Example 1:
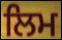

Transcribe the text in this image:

ਲਿਮ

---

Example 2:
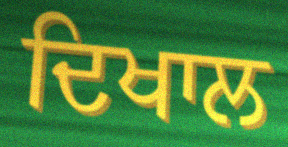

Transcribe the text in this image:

ਦਿਖਾਲ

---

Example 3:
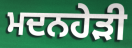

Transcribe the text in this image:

ਮਦਨਹੇੜੀ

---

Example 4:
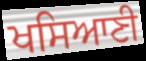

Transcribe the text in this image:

ਖਸਿਆਣੀ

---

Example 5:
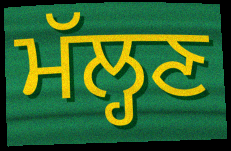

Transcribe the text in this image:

ਮੱਲ੍ਹਣ